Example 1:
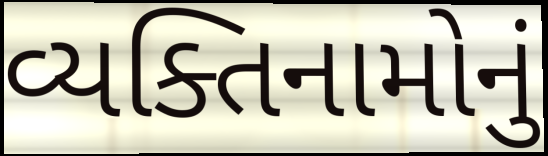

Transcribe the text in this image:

વ્યક્તિનામોનું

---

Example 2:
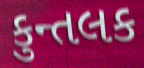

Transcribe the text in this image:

કુન્તલક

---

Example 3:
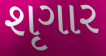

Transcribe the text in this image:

શૃગાર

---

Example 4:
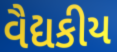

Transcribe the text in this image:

વૈદ્યકીય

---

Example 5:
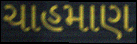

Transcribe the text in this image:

ચાહમાણ